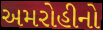
અમરોહીનો